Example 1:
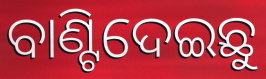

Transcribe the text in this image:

ବାଣ୍ଟିଦେଇଛୁ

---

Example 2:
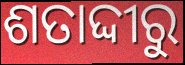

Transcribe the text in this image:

ଶତାଦ୍ଦୀରୁ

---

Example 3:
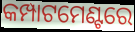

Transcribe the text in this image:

କମ୍ପାଟମେଣ୍ଟରେ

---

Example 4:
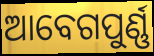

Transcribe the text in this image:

ଆବେଗପୁର୍ଣ୍ଣ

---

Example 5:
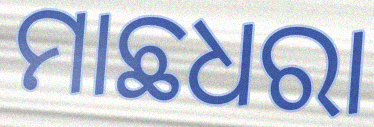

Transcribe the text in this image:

ମାଛଧରା